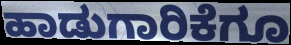
ಹಾಡುಗಾರಿಕೆಗೂ